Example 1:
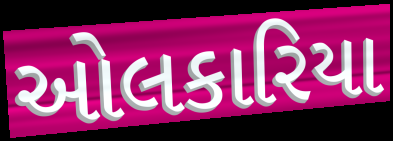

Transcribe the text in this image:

ઓલકારિયા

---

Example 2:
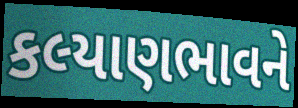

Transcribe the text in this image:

કલ્યાણભાવને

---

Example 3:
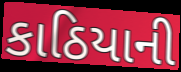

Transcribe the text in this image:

કાઠિયાની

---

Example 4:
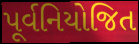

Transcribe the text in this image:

પૂર્વનિયોજિત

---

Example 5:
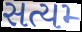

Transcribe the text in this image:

સત્યમ્‍